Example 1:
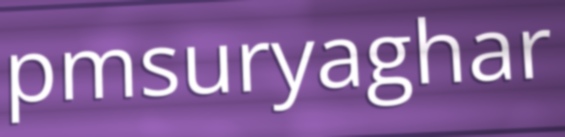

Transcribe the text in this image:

pmsuryaghar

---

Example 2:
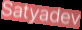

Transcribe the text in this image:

Satyadev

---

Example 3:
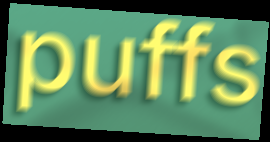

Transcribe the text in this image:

puffs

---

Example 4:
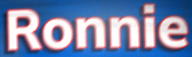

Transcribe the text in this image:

Ronnie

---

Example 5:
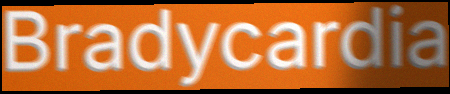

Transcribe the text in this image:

Bradycardia